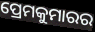
ପ୍ରେମକୁମାରର